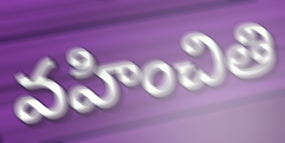
వహించితి